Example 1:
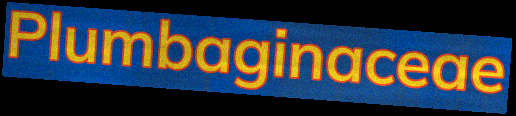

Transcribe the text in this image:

Plumbaginaceae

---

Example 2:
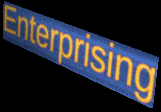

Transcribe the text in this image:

Enterprising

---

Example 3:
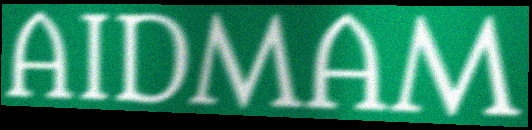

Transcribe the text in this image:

AIDMAM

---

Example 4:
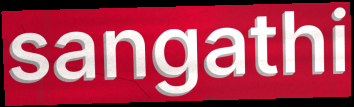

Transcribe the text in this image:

sangathi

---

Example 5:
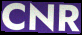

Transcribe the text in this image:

CNR